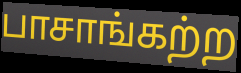
பாசாங்கற்ற